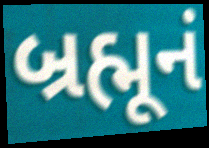
બ્રહ્મૂનં